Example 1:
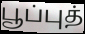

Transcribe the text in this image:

பூப்புத்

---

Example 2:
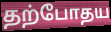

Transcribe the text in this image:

தற்போதய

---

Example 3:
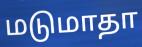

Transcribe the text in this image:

மடுமாதா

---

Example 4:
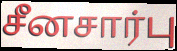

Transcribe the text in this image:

சீனசார்பு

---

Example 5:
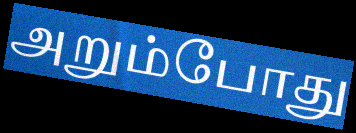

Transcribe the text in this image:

அறும்போது